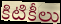
కిటికీలు